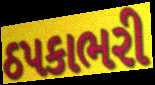
ઠપકાભરી